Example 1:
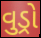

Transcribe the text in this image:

વુડ્રો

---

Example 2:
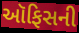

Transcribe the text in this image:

ઑફિસની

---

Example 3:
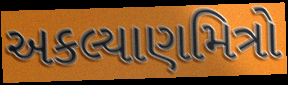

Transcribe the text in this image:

અકલ્યાણમિત્રો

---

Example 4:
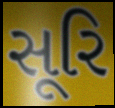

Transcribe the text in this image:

સૂરિ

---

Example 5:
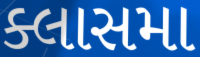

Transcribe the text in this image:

ક્લાસમા